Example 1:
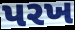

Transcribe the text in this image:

પરખ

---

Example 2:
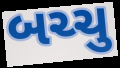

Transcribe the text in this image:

બચ્ચુ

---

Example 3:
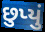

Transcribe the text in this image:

છુપ્યું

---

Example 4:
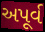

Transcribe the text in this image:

અપૂર્વ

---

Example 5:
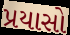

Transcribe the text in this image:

પ્રયાસો